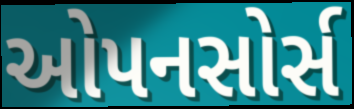
ઓપનસોર્સ